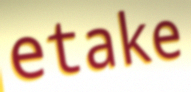
etake